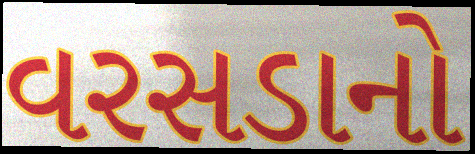
વરસડાનો